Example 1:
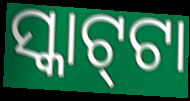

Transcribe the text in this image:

ସ୍କାଟ୍‌ଟା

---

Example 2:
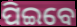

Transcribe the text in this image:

ପିଇବେ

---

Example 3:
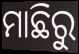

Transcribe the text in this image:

ମାଛିରୁ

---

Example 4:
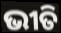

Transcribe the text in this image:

ଭୀତି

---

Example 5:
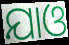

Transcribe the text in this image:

ଯାଓ